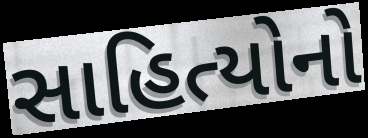
સાહિત્યોનો